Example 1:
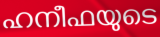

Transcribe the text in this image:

ഹനീഫയുടെ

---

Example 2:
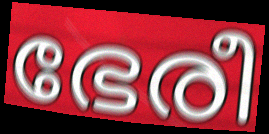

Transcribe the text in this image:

ഭേരീ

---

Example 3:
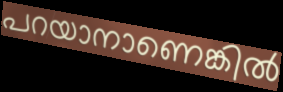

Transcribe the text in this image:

പറയാനാണെങ്കിൽ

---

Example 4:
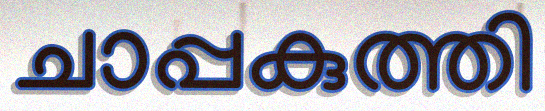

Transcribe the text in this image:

ചാപ്പകുത്തി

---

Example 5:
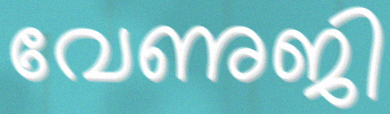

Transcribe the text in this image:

വേണുജി